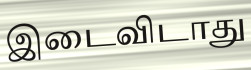
இடைவிடாது